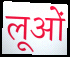
लूओं